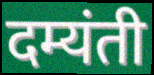
दम्यंती